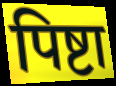
पिष्टा